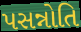
પસન્નોતિ